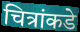
चित्रांकडे